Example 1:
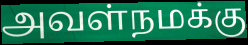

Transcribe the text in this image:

அவள்நமக்கு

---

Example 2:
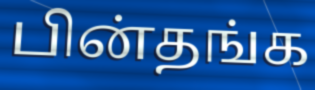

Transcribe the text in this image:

பின்தங்க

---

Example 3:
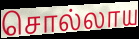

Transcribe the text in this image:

சொல்லாய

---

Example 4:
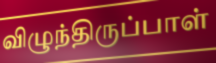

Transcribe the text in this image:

விழுந்திருப்பாள்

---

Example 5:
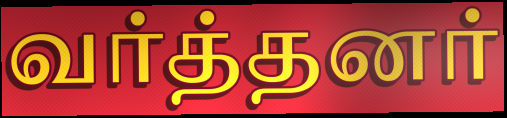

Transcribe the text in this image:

வர்த்தனர்